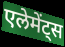
एलेमेंट्स